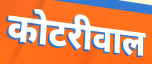
कोटरीवाल